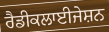
ਰੈਡੀਕਲਾਈਜੇਸ਼ਨ